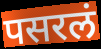
पसरलं